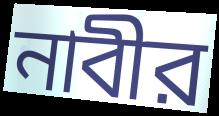
নাবীর